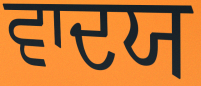
ਵਾਦਯ